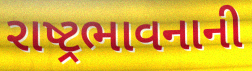
રાષ્ટ્રભાવનાની